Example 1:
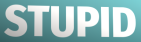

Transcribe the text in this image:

STUPID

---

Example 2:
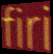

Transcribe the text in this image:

firi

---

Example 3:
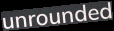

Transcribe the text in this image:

unrounded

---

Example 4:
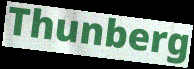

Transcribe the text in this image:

Thunberg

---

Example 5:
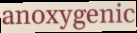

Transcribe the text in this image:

anoxygenic